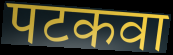
पटकवा